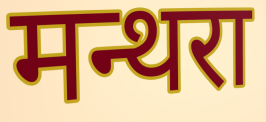
मन्थरा